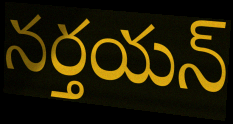
నర్తయన్